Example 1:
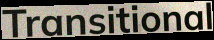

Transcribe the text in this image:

Transitional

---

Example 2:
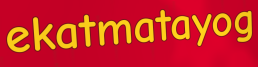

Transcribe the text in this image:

ekatmatayog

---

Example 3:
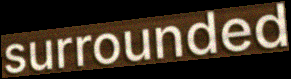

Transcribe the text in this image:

surrounded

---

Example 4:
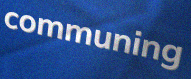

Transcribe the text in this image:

communing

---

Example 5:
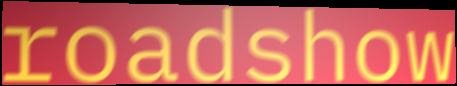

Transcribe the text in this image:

roadshow